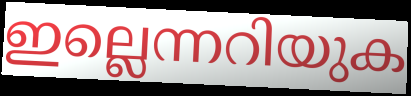
ഇല്ലെന്നറിയുക